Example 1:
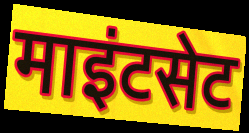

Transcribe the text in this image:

माइंटसेट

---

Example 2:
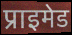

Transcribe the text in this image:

प्राइमेड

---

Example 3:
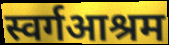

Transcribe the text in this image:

स्वर्गआश्रम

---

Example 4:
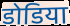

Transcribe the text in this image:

डोडिया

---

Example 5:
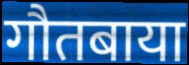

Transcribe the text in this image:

गौतबाया